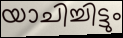
യാചിച്ചിട്ടും